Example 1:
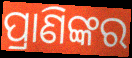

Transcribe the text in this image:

ପ୍ରାଣିଙ୍କର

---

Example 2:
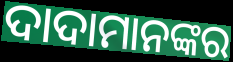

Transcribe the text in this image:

ଦାଦାମାନଙ୍କର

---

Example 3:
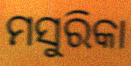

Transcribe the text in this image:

ମସୁରିକା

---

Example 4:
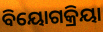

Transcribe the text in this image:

ବିୟୋଗକ୍ରିୟା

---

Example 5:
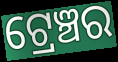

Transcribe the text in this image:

ଟ୍ରେଞ୍ଚର